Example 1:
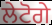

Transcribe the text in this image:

ਲੇਟੋਗੇ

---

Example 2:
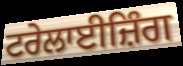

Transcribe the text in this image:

ਟਰੇਲਾਈਜ਼ਿੰਗ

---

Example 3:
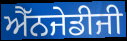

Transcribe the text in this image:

ਐੱਨਜੇਡੀਜੀ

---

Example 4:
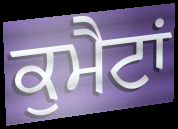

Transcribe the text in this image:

ਕੁਮੈਟਾਂ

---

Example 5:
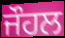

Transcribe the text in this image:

ਜੌਹਲ